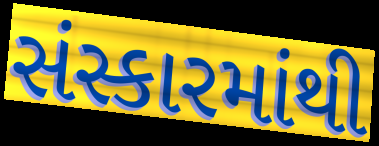
સંસ્કારમાંથી